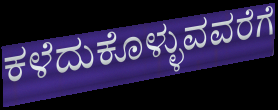
ಕಳೆದುಕೊಳ್ಳುವವರೆಗೆ